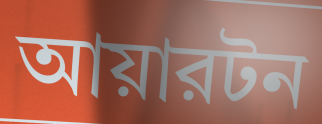
আয়ারটন